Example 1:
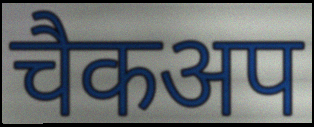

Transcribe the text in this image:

चैकअप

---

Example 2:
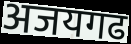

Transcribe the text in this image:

अजयगढ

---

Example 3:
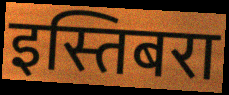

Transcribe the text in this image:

इस्तिबरा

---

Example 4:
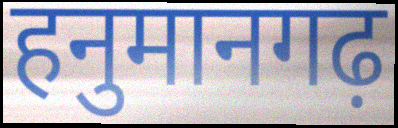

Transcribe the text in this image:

हनुमानगढ़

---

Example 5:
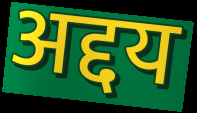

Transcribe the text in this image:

अद्दय